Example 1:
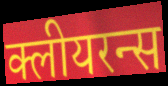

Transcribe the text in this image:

क्लीयरन्स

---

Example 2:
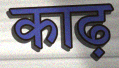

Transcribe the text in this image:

काढ़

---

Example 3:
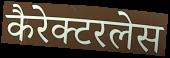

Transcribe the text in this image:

कैरेक्टरलेस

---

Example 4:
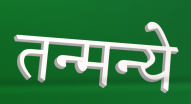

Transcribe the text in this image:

तन्मन्ये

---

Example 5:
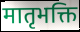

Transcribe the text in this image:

मातृभक्ति